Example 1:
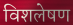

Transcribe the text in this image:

विशलेषण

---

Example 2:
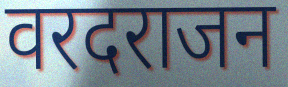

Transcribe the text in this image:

वरदराजन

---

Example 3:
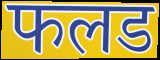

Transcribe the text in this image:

फलड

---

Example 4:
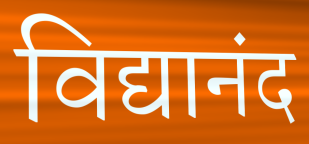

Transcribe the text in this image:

विद्यानंद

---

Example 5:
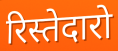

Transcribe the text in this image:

रिस्तेदारो